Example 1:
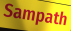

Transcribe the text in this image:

Sampath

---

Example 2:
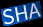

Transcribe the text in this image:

SHA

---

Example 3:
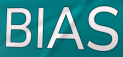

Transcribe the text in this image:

BIAS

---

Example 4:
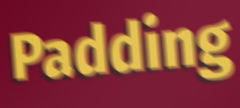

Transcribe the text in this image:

Padding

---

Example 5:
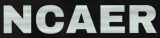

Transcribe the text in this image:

NCAER